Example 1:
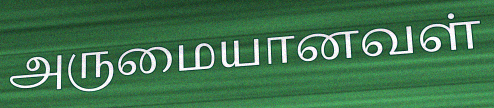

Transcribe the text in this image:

அருமையானவள்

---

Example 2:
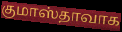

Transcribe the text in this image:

குமாஸ்தாவாக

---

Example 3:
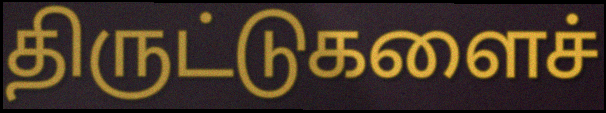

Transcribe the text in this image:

திருட்டுகளைச்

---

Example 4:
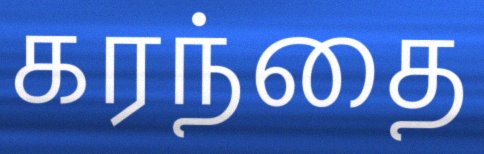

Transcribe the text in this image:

கரந்தை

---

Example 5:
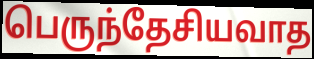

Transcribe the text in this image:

பெருந்தேசியவாத